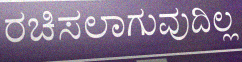
ರಚಿಸಲಾಗುವುದಿಲ್ಲ